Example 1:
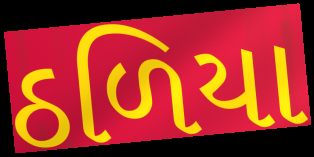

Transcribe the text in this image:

ઠળિયા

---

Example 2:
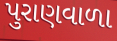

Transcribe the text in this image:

પુરાણવાળા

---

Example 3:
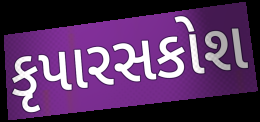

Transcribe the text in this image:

કૃપારસકોશ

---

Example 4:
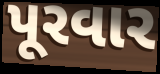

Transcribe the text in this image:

પૂરવાર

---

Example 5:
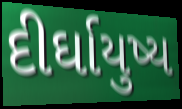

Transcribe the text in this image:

દીર્ઘાયુષ્ય